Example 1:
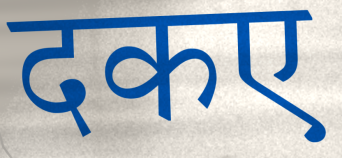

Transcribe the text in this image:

दकए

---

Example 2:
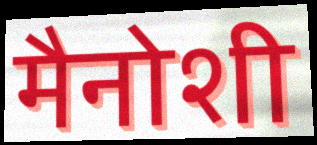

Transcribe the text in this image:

मैनोशी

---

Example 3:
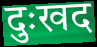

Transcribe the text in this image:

दुःखद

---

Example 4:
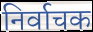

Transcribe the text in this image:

निर्वाचक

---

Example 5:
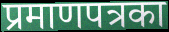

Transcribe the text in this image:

प्रमाणपत्रका